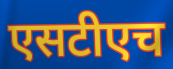
एसटीएच